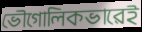
ভৌগোলিকভাৱেই